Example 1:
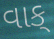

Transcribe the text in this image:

વાક્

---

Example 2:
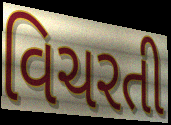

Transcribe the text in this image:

વિચરતી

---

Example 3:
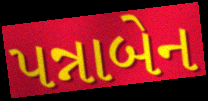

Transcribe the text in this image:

પન્નાબેન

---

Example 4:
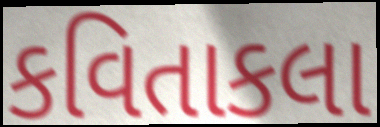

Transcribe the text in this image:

કવિતાકલા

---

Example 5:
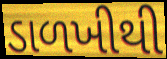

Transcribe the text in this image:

ડાળખીથી